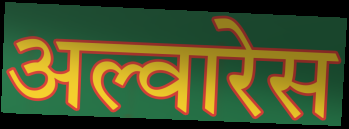
अल्वारेस